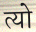
त्यो